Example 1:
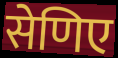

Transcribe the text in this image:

सेणिए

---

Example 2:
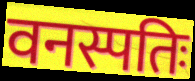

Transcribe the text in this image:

वनस्पतिः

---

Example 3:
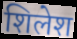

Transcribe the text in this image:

शिलेश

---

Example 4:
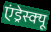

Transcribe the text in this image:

एंड्रेस्क्यू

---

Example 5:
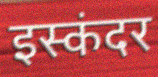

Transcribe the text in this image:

इस्कंदर